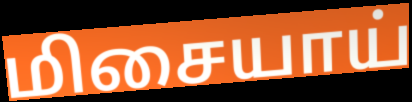
மிசையாய்